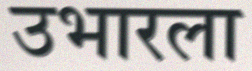
उभारला